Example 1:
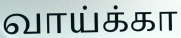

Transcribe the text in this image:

வாய்க்கா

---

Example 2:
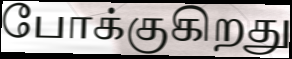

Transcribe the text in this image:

போக்குகிறது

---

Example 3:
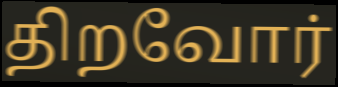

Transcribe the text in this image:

திறவோர்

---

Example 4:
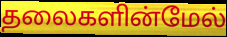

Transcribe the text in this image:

தலைகளின்மேல்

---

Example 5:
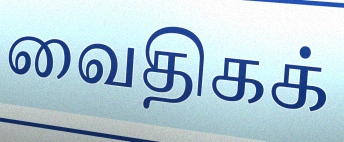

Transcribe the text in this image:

வைதிகக்